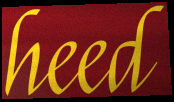
heed